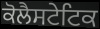
ਕੋਲੈਸਟੇਟਿਕ